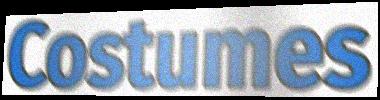
Costumes